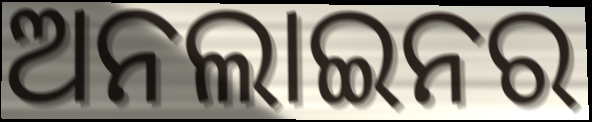
ଅନଲାଇନର